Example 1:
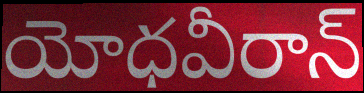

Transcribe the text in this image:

యోధవీరాన్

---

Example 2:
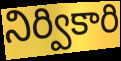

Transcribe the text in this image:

నిర్వికారి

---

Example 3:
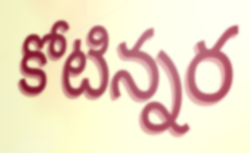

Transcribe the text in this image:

కోటిన్నర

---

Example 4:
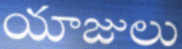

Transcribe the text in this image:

యాజులు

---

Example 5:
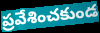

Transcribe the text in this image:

ప్రవేశించకుండ